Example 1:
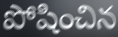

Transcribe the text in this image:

పోషించిన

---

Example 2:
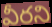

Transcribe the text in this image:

వీరని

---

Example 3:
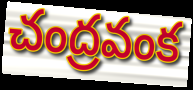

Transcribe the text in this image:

చంద్రవంక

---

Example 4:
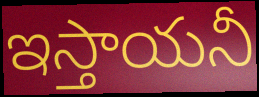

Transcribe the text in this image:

ఇస్తాయనీ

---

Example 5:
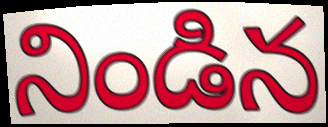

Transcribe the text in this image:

నిండిన